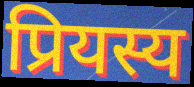
प्रियस्य